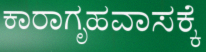
ಕಾರಾಗೃಹವಾಸಕ್ಕೆ